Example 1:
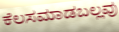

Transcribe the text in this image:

ಕೆಲಸಮಾಡಬಲ್ಲವು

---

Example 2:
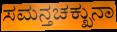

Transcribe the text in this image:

ಸಮನ್ತಚಕ್ಖುನಾ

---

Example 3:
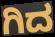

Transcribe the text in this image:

ಗಿದ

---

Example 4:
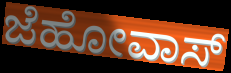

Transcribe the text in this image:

ಜೆಹೋವಾಸ್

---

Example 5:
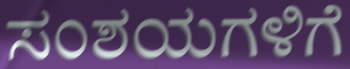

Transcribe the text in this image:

ಸಂಶಯಗಳಿಗೆ